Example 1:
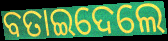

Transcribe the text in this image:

ବତାଇଦେଲେ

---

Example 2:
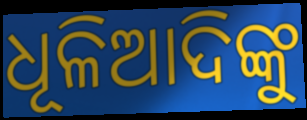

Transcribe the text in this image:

ଧୂଳିଆଦିଙ୍କୁ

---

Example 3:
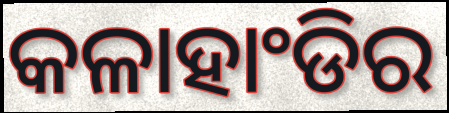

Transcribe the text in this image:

କଳାହାଂଡିର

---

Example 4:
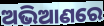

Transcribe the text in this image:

ଅଭିଆଣରେ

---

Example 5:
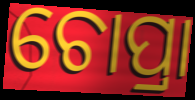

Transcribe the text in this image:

ଚୋପ୍ରା